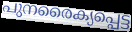
പുനരൈക്യപ്പെട്ട